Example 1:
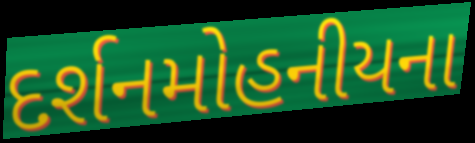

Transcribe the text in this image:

દર્શનમોહનીયના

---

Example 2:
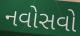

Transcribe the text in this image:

નવોસવો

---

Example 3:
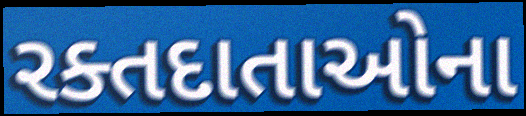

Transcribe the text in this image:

રક્તદાતાઓના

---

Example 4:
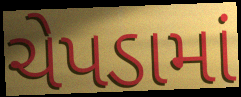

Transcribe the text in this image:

ચેપડામાં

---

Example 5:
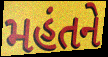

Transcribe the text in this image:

મહંતને